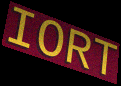
IORT